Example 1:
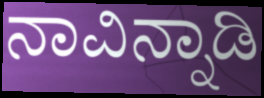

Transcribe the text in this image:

ನಾವಿನ್ನಾಡಿ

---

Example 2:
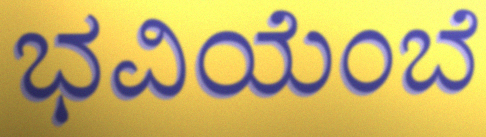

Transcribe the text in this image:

ಭವಿಯೆಂಬೆ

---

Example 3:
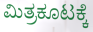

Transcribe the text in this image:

ಮಿತ್ರಕೂಟಕ್ಕೆ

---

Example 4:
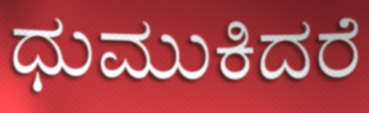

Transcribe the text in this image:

ಧುಮುಕಿದರೆ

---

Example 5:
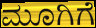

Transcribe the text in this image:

ಮೂಗಿಗೆ